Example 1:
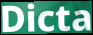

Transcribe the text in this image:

Dicta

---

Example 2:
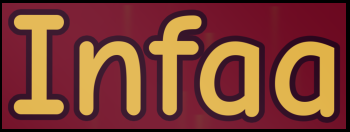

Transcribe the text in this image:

Infaa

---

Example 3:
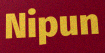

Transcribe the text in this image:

Nipun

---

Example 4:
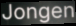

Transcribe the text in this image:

Jongen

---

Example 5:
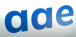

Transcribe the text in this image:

aae